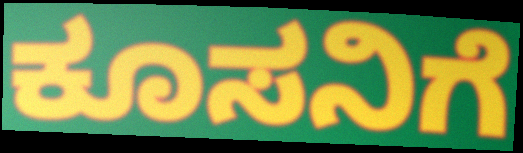
ಕೂಸನಿಗೆ